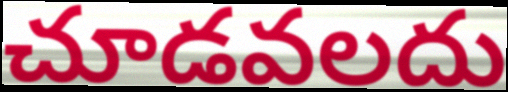
చూడవలదు